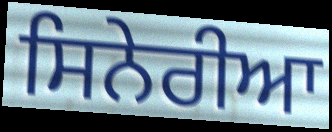
ਸਿਨੇਰੀਆ